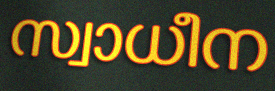
സ്വാധീന